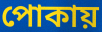
পোকায়